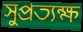
সুপ্রত্যক্ষ